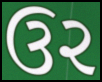
ઉર